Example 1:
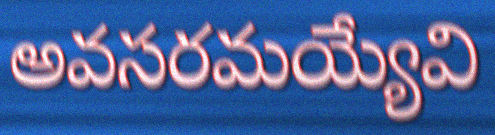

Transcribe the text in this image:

అవసరమయ్యేవి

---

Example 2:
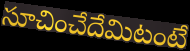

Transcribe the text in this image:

సూచించేదేమిటంటే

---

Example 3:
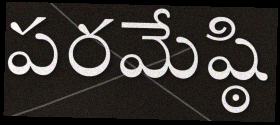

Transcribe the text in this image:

పరమేష్ఠి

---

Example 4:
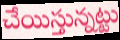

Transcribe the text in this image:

చేయిస్తున్నట్టు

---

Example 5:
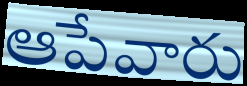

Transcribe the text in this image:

ఆపేవారు